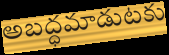
అబద్ధమాడుటకు